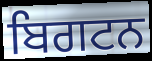
ਬਿਗਟਨ